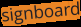
signboard